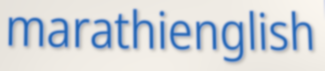
marathienglish